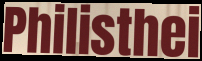
Philisthei